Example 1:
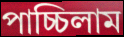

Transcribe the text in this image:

পাচ্চিলাম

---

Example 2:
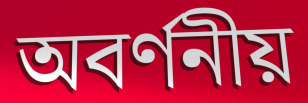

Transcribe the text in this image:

অবর্ণনীয়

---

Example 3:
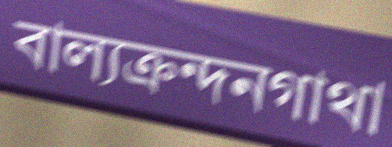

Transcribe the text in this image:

বাল্যক্রন্দনগাথা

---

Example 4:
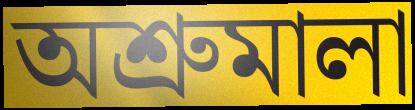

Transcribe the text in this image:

অশ্রুমালা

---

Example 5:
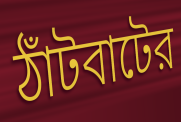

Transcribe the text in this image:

ঠাঁটবাটের